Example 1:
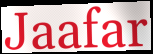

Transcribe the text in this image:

Jaafar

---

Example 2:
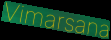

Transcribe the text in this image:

Vimarsana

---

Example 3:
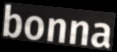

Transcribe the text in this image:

bonna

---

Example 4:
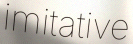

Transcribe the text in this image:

imitative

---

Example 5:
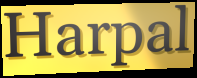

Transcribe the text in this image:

Harpal